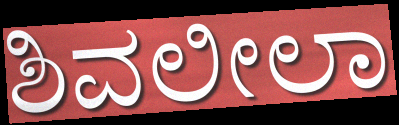
ಶಿವಲೀಲಾ